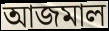
আজমাল